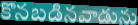
కొనబడినవాడును